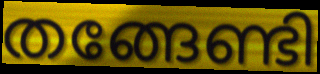
തങ്ങേണ്ടി